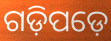
ଗଡ଼ିପଡ଼େ